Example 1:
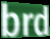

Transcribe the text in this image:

brd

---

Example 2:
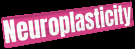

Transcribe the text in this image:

Neuroplasticity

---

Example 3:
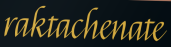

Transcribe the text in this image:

raktachenate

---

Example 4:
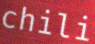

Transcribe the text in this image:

chili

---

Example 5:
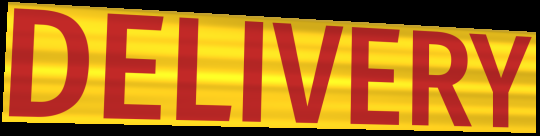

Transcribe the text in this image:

DELIVERY